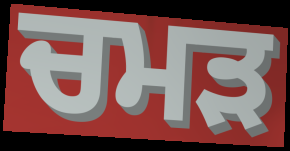
ਚਮੜ